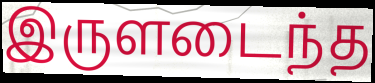
இருளடைந்த